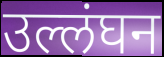
उल्लंघन